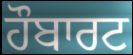
ਹੌਬਾਰਟ